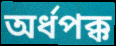
অর্ধপক্ক